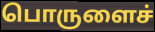
பொருளைச்